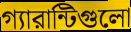
গ্যারান্টিগুলো